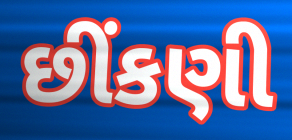
છીંકણી